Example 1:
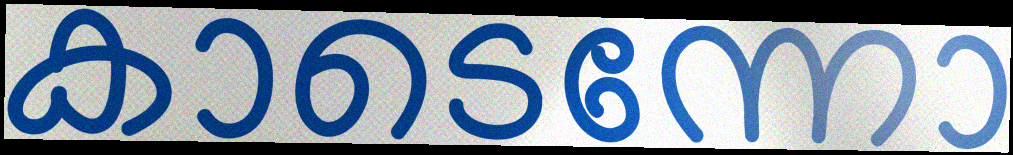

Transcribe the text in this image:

കാടെന്നോ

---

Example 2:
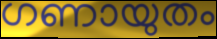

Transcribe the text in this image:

ഗണായുതം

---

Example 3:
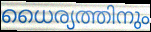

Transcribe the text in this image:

ധൈര്യത്തിനും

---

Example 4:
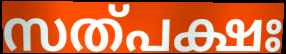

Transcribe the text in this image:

സത്പക്ഷഃ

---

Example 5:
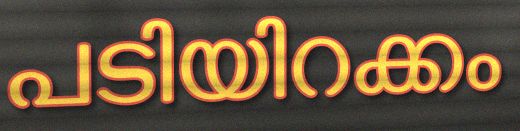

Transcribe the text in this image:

പടിയിറക്കം